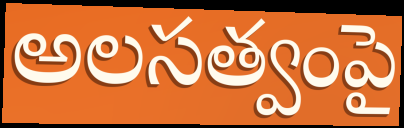
అలసత్వంపై